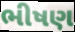
ભીષણ